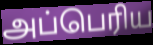
அப்பெரிய